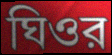
ঘিওর